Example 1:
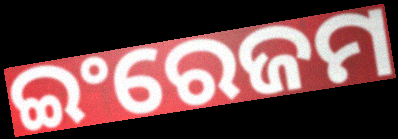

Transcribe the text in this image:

ଇଂରେଜମ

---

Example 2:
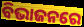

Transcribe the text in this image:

ବିଭାଜନରେ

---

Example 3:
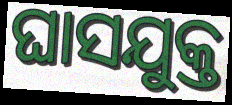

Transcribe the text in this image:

ଘାସଯୁକ୍ତ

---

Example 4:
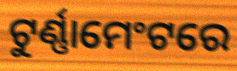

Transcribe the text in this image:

ଟୁର୍ଣ୍ଣାମେଂଟରେ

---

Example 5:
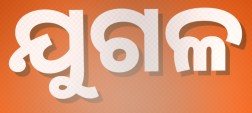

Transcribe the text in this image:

ଯୁଗଳ